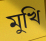
মুখি